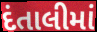
દંતાલીમાં